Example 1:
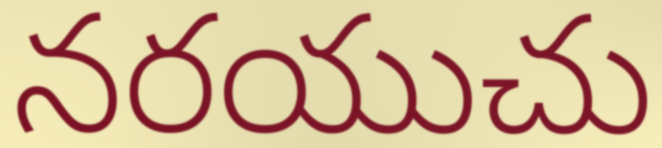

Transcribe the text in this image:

నరయుచు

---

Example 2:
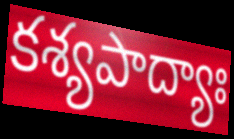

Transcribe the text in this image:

కశ్యపాద్యాః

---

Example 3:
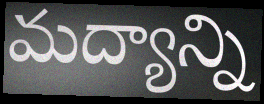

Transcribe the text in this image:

మద్యాన్ని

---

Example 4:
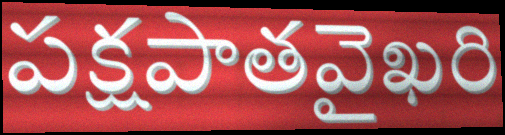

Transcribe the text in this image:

పక్షపాతవైఖరి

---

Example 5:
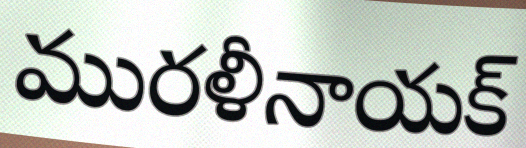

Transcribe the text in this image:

మురళీనాయక్